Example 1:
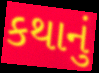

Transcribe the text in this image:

કથાનું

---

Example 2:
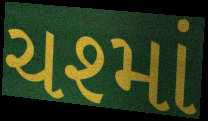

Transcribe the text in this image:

ચશ્માં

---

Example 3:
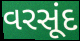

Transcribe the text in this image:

વરસૂંદ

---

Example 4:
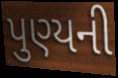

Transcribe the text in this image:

પુણ્યની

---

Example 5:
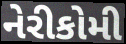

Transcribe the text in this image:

નેરીકોમી